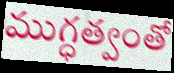
ముగ్ధత్వంతో